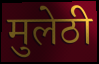
मुलेठी